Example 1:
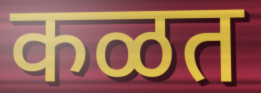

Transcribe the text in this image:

कळत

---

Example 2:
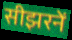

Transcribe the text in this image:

सीझरनें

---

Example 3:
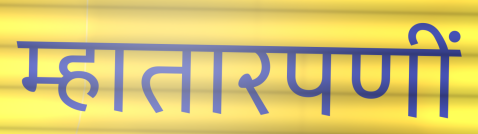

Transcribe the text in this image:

म्हातारपणीं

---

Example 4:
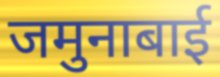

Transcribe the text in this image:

जमुनाबाई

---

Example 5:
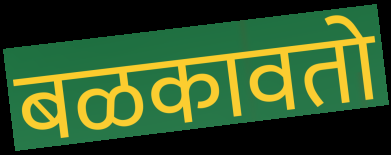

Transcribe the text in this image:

बळकावतो